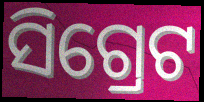
ସିଗ୍ରେଟ